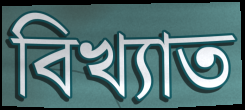
বিখ্যাত